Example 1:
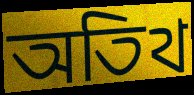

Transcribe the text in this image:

অতিথ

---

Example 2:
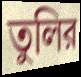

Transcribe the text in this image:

তুলির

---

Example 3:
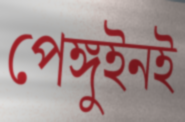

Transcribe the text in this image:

পেঙ্গুইনই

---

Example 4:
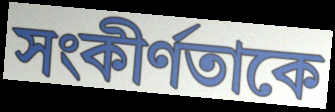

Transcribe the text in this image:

সংকীর্ণতাকে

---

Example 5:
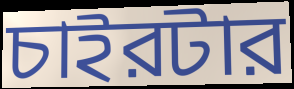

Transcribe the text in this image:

চাইরটার